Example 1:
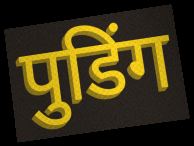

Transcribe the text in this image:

पुडिंग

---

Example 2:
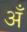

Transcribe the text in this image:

अँ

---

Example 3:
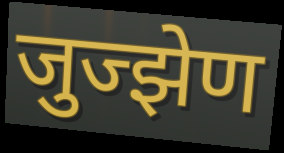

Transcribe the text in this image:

जुज्झेण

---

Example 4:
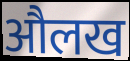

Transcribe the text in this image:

औलख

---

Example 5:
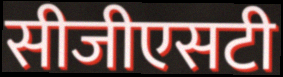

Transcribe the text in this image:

सीजीएसटी